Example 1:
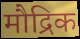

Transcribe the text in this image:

मौद्रिक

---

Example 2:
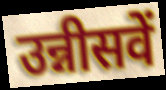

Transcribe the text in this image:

उन्नीसवें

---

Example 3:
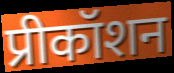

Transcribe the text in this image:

प्रीकॉशन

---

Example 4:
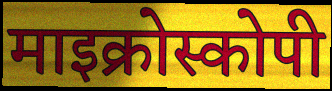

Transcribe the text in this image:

माइक्रोस्कोपी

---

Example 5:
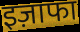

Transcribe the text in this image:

इज़ाफा